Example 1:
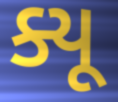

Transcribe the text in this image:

ક્યૂ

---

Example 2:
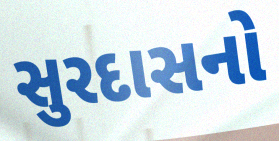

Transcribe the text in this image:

સુરદાસનો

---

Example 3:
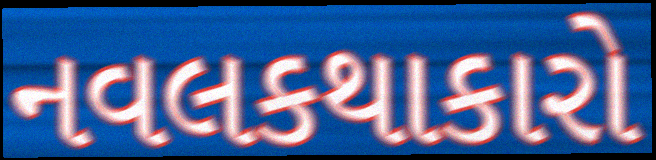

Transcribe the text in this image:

નવલકથાકારો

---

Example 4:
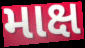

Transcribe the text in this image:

માક્ષ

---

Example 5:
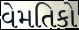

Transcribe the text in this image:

વેમતિકો